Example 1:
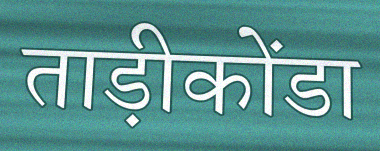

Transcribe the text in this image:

ताड़ीकोंडा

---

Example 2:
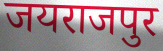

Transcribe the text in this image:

जयराजपुर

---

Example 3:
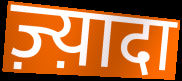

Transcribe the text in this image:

ज़्य़ादा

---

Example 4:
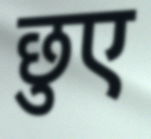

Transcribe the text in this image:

छुए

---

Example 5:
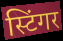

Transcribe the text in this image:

स्टिंगर